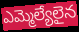
ఎమ్మెల్యేలైన